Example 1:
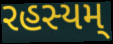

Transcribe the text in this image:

રહસ્યમ્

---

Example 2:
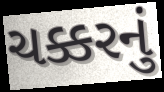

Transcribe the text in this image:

ચક્કરનું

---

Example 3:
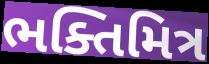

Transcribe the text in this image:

ભક્તિમિત્ર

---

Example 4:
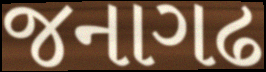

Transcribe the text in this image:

જનાગઢ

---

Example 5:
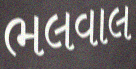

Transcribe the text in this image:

ભલવાલ